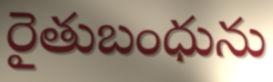
రైతుబంధును